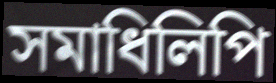
সমাধিলিপি